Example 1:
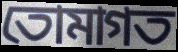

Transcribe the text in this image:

তোমাগত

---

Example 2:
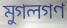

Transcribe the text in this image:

মুগলগণ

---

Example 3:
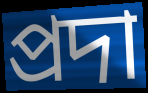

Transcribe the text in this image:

প্রদা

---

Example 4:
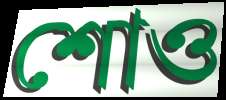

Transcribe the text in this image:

শোও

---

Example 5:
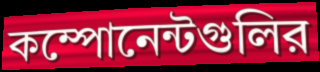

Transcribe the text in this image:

কম্পোনেন্টগুলির